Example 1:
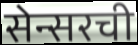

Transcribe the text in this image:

सेन्सरची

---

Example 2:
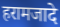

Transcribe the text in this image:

हरामजादे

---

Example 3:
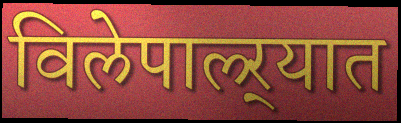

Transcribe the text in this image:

विलेपाल्र्यात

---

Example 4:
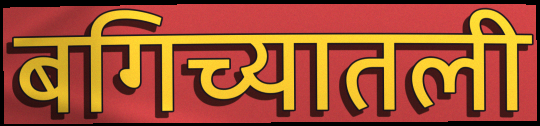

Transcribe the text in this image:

बगिच्यातली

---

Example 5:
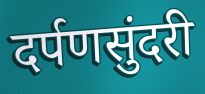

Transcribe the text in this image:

दर्पणसुंदरी